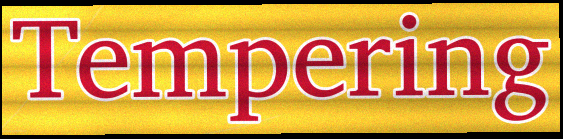
Tempering